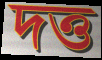
দত্ত